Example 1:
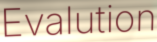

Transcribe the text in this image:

Evalution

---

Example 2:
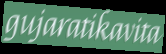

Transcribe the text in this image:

gujaratikavita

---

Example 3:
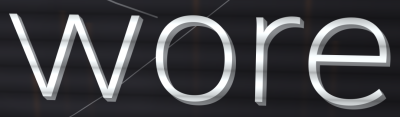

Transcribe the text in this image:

wore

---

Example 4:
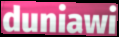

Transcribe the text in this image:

duniawi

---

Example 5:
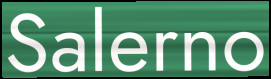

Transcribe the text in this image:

Salerno